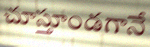
చూస్తూండగానే